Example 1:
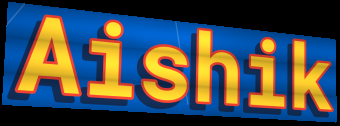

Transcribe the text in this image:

Aishik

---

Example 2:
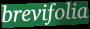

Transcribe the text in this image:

brevifolia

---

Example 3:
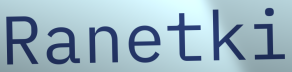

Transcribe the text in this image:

Ranetki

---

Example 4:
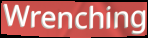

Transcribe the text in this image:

Wrenching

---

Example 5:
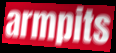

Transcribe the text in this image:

armpits